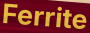
Ferrite